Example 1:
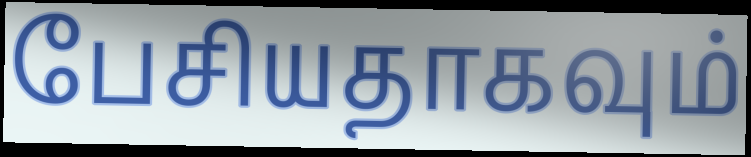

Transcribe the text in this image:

பேசியதாகவும்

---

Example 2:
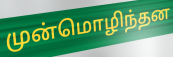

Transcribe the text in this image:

முன்மொழிந்தன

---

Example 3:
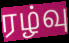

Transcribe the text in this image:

ரழ்வு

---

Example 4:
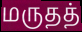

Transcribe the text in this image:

மருதத்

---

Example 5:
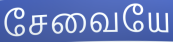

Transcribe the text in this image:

சேவையே